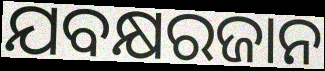
ଯବକ୍ଷରଜାନ